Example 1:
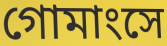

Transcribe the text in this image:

গোমাংসে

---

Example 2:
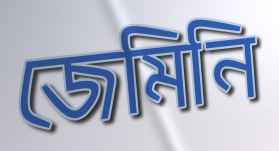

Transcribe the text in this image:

জেমিনি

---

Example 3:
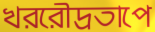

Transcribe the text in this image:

খররৌদ্রতাপে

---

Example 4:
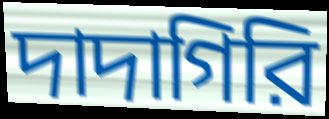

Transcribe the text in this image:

দাদাগিরি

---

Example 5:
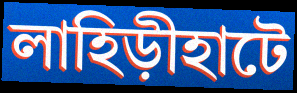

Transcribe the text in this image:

লাহিড়ীহাটে